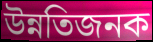
উন্নতিজনক